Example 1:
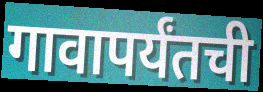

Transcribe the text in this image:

गावापर्यंतची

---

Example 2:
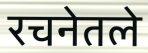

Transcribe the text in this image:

रचनेतले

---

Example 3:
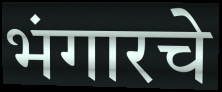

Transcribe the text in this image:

भंगारचे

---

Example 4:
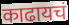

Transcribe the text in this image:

काढायचं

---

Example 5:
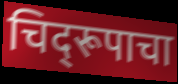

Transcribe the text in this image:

चिद्‌रूपाचा